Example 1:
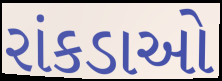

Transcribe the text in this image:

રાંકડાઓ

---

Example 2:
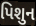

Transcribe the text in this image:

પિશુન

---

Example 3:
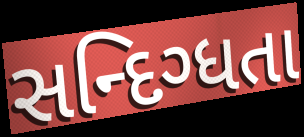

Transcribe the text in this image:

સન્દિગ્ધતા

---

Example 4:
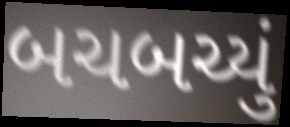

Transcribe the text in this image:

બચબચ્યું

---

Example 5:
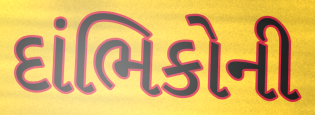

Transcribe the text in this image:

દાંભિકોની